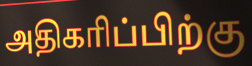
அதிகரிப்பிற்கு